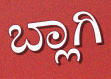
ಬ್ಲಾಗಿ